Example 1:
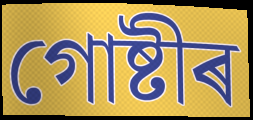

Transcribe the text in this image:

গোষ্টীৰ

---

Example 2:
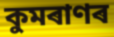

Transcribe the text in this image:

কুমৰাণৰ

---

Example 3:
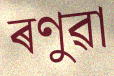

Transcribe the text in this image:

ৰণুৱা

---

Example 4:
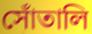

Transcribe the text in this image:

সোঁতালি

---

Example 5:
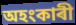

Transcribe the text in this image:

অহংকাৰী